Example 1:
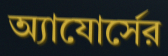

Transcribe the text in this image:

অ্যাযোর্সের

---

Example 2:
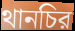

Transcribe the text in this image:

থানচির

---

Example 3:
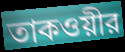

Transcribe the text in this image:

তাকওয়ীর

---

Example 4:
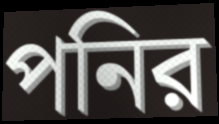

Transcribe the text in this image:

পনির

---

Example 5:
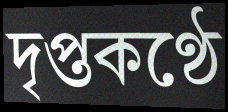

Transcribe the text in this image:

দৃপ্তকণ্ঠে